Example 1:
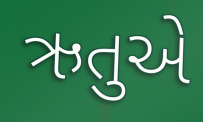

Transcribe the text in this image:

ઋતુએ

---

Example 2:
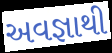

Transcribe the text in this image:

અવજ્ઞાથી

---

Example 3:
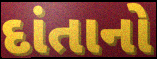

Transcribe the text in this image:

દાંતાનો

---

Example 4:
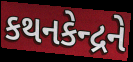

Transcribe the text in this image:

કથનકેન્દ્રને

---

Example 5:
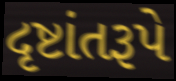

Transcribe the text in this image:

દૃષ્ટાંતરૂપે